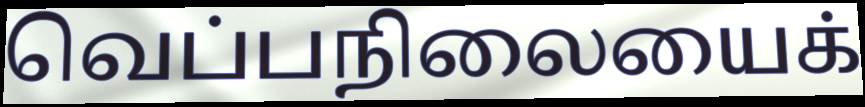
வெப்பநிலையைக்